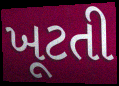
ખૂટતી